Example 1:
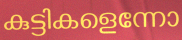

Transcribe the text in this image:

കുട്ടികളെന്നോ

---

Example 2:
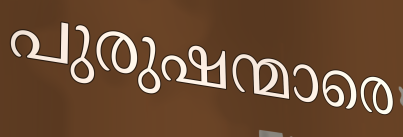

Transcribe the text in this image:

പുരുഷന്മാരെ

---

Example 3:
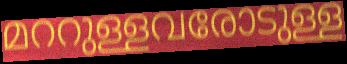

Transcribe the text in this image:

മററുള്ളവരോടുള്ള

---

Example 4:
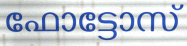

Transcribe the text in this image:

ഫോട്ടോസ്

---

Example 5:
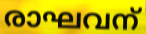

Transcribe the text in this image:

രാഘവന്